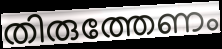
തിരുത്തേണം